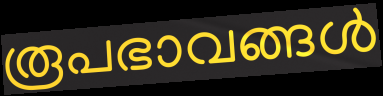
രൂപഭാവങ്ങൾ